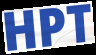
HPT